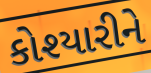
કોશ્યારીને